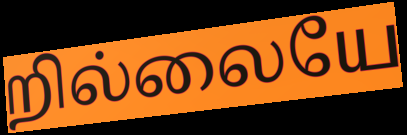
றில்லையே